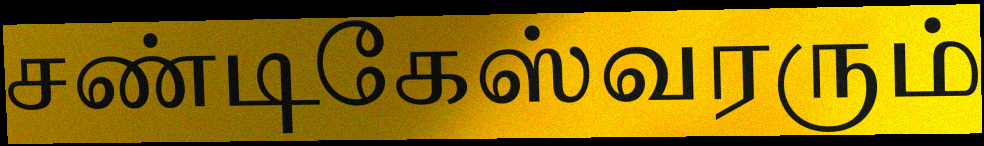
சண்டிகேஸ்வரரும்